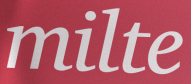
milte